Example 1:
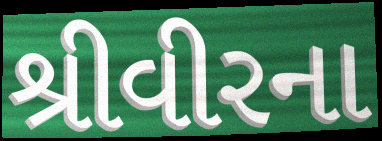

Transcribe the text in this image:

શ્રીવીરના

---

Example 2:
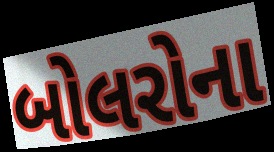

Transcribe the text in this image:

બોલરોના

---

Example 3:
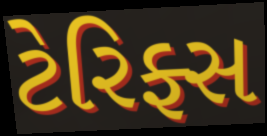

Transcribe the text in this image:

ટેરિફ્સ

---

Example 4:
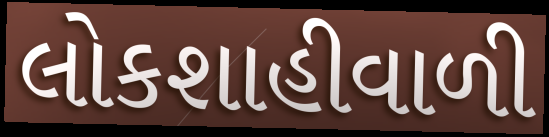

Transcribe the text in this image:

લોકશાહીવાળી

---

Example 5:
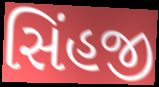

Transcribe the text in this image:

સિંહજી